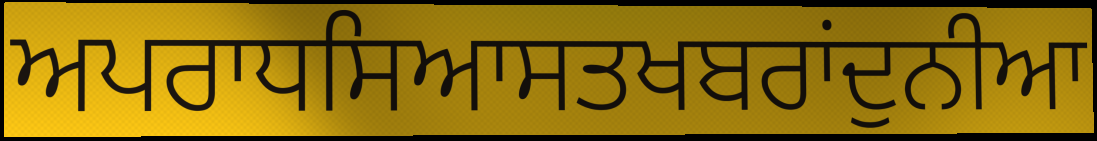
ਅਪਰਾਧਸਿਆਸਤਖਬਰਾਂਦੁਨੀਆ